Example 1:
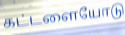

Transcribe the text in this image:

கட்டளையோடு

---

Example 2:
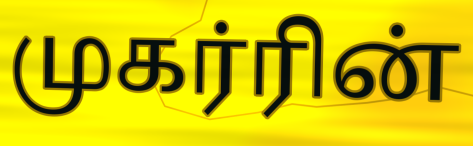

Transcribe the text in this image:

முகர்ரின்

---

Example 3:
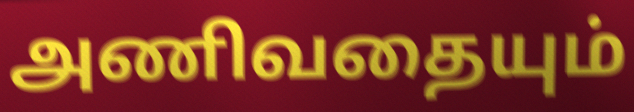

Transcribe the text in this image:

அணிவதையும்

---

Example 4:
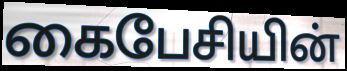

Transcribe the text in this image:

கைபேசியின்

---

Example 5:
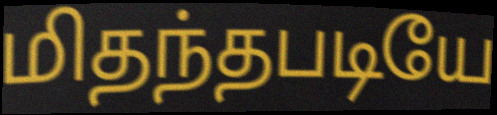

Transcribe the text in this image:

மிதந்தபடியே